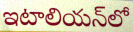
ఇటాలియన్‌లో